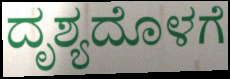
ದೃಶ್ಯದೊಳಗೆ